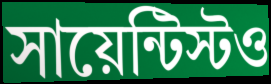
সায়েন্টিস্টও